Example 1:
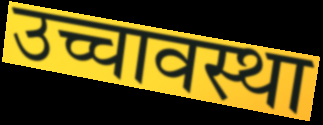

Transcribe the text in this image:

उच्चावस्था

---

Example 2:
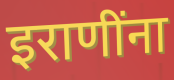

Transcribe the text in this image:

इराणींना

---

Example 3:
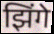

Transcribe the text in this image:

झिंगे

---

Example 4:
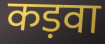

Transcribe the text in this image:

कड़वा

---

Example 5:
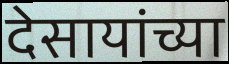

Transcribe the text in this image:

देसायांच्या